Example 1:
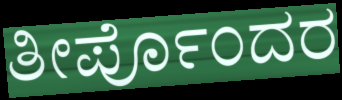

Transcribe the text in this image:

ತೀರ್ಪೊಂದರ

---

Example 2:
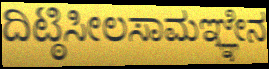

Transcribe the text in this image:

ದಿಟ್ಠಿಸೀಲಸಾಮಞ್ಞೇನ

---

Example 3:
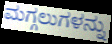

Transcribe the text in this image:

ಮಗ್ಗಲುಗಳನ್ನು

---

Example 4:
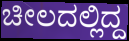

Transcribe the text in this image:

ಚೀಲದಲ್ಲಿದ್ದ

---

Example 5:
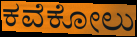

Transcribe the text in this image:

ಕವೆಕೋಲು